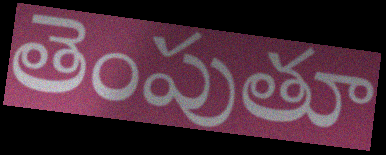
తెంపుతూ